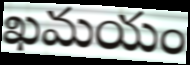
ఖమయం